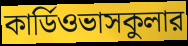
কার্ডিওভাসকুলার